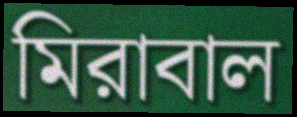
মিরাবাল